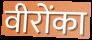
वीरोंका